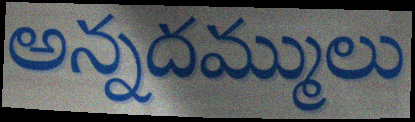
అన్నదమ్ములు